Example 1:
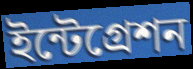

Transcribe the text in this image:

ইন্টেগ্রেশন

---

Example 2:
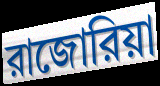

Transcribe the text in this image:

রাজোরিয়া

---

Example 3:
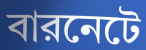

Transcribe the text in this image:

বারনেটে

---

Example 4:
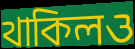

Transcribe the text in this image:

থাকিলও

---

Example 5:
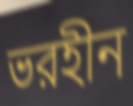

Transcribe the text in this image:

ভরহীন